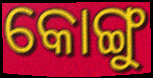
କୋଙ୍ଗୁ